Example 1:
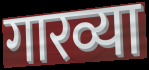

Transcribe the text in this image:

गारव्या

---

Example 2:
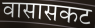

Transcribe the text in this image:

वासासकट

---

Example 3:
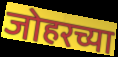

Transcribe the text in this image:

जोहरच्या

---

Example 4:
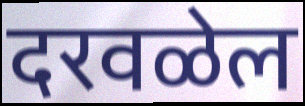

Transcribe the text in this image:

दरवळेल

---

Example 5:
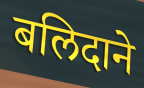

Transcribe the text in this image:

बलिदाने